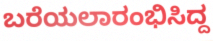
ಬರೆಯಲಾರಂಭಿಸಿದ್ದ